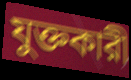
যুক্তকারী